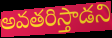
అవతరిస్తాడని